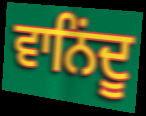
ਵਾਨਿਂਦੂ